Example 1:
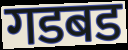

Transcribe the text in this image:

गडबड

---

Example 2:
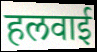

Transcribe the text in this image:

हलवाई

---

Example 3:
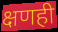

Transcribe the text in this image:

क्षणही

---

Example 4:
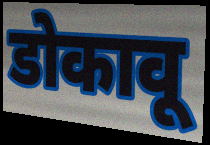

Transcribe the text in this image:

डोकावू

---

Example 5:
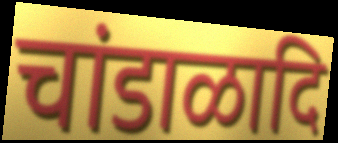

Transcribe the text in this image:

चांडाळादि